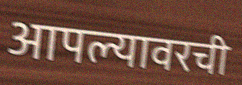
आपल्यावरची